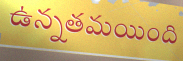
ఉన్నతమయింది